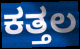
ಕತ್ತಲ